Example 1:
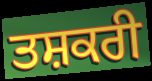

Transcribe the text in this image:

ਤਸ਼ਕਰੀ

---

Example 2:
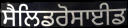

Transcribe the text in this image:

ਸੈਲਿਡਰੋਸਾਈਡ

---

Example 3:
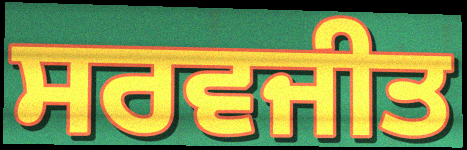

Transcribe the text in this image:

ਸਰਵਜੀਤ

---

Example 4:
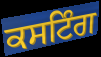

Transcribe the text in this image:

ਕਸਟਿੰਗ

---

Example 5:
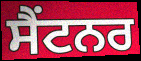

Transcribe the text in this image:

ਸੈਂਟਨਰ